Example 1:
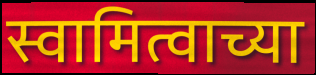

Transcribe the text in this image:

स्वामित्वाच्या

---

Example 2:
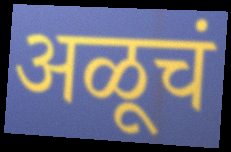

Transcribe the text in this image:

अळूचं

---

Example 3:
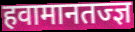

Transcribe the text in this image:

हवामानतज्ज्ञ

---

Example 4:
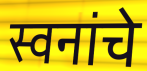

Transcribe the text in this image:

स्वनांचे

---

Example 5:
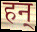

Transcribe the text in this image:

हन्